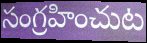
సంగ్రహించుట